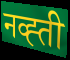
नव्ह्ती